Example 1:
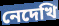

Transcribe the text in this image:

নেদেখি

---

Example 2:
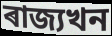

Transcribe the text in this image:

ৰাজ্যখন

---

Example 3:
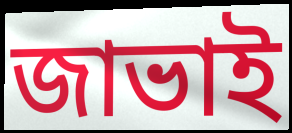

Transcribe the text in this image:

জাভাই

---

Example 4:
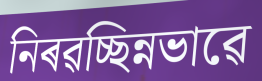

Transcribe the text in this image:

নিৰৱচ্ছিন্নভাৱে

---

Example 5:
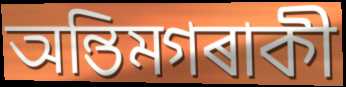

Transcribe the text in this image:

অন্তিমগৰাকী